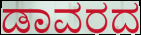
ಡಾವರದ